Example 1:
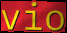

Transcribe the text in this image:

vio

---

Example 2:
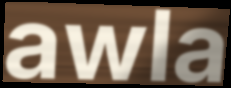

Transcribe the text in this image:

awla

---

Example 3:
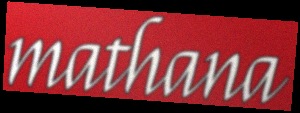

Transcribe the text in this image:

mathana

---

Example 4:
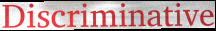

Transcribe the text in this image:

Discriminative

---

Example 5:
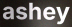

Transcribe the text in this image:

ashey